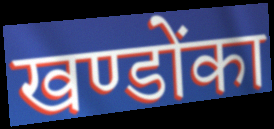
खण्डोंका